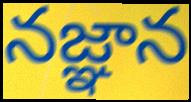
నజ్ఞాన